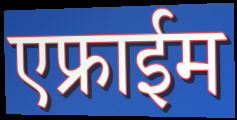
एफ्राईम